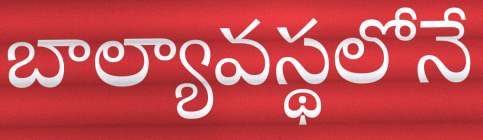
బాల్యావస్థలోనే